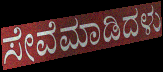
ಸೇವೆಮಾಡಿದಳು